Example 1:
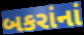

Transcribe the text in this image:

બકરાંનાં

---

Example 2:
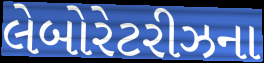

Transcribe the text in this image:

લેબોરેટરીઝના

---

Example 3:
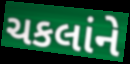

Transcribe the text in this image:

ચકલાંને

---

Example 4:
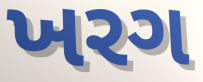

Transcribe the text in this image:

ખરગ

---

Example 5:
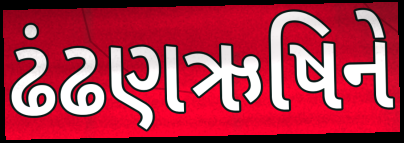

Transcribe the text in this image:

ઢંઢણઋષિને